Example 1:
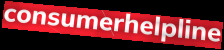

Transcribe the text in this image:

consumerhelpline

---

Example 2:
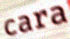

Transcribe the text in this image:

cara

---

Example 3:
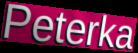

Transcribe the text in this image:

Peterka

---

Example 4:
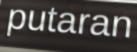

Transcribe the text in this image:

putaran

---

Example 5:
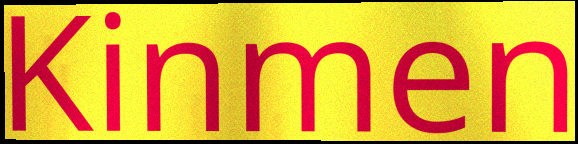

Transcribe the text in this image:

Kinmen